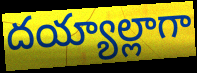
దయ్యాల్లాగా